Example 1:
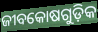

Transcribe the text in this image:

ଜୀବକୋଷଗୁଡ଼ିକ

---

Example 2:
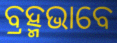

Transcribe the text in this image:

ବ୍ରହ୍ମଭାବେ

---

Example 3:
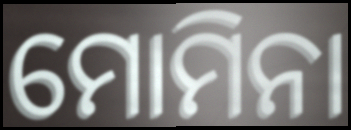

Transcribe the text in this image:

ମୋମିନା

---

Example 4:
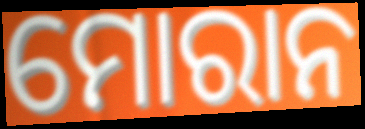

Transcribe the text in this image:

ମୋରାନ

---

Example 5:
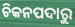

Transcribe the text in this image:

ଚିକନପଦାରୁ